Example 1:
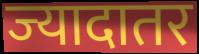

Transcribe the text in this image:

ज्‍यादातर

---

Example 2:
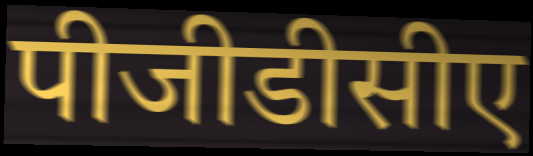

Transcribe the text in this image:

पीजीडीसीए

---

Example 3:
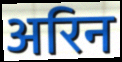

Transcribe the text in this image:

अरिन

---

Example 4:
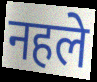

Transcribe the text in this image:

नहले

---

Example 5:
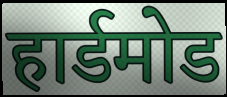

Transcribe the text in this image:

हार्डमोड